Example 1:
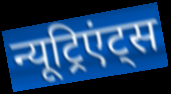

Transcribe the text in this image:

न्यूट्रिएंट्स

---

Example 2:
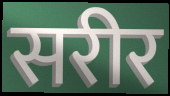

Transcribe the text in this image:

सरीर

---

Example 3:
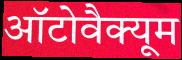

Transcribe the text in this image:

ऑटोवैक्यूम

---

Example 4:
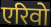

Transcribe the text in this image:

एरिवो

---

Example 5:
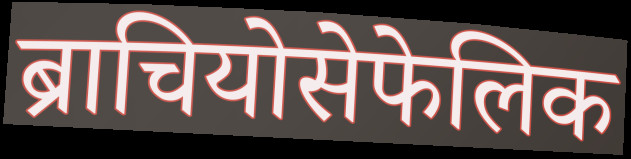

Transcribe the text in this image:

ब्राचियोसेफेलिक